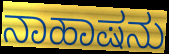
ನಾಹಾಷನು